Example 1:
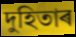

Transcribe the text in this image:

দুহিতাৰ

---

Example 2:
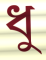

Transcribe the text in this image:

ধু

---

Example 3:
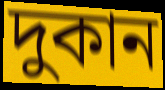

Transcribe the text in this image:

দুকান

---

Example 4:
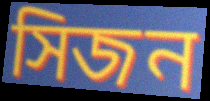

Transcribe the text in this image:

সিজন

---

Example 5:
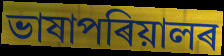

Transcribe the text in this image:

ভাষাপৰিয়ালৰ